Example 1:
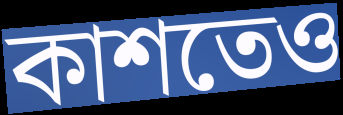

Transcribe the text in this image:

কাশতেও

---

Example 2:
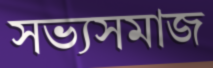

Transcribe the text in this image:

সভ্যসমাজ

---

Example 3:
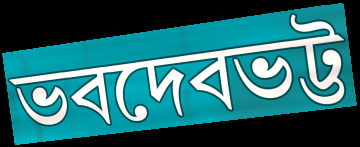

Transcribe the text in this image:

ভবদেবভট্ট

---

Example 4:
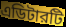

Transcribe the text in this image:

এডিটারটি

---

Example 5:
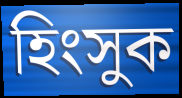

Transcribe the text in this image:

হিংসুক